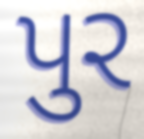
પુર